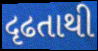
દૃઢતાથી